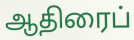
ஆதிரைப்